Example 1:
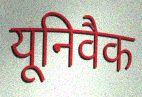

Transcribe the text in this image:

यूनिवैक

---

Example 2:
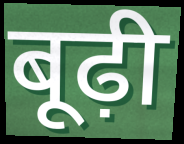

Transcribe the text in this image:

बूढ़ी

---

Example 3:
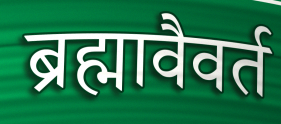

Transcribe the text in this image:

ब्रह्मावैवर्त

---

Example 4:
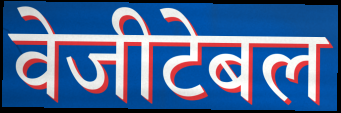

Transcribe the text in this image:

वेजीटेबल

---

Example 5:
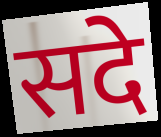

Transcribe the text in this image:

सदे